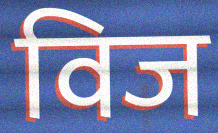
विज